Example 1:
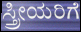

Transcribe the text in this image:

ಸ್ತ್ರೀಯರಿಗೆ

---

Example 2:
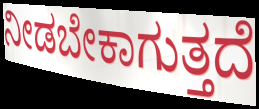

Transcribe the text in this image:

ನೀಡಬೇಕಾಗುತ್ತದೆ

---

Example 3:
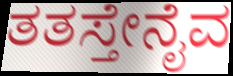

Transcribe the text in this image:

ತತಸ್ತೇನೈವ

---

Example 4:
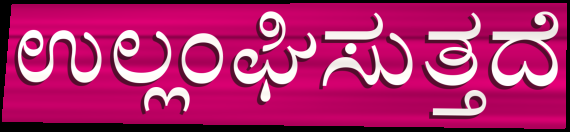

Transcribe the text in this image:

ಉಲ್ಲಂಘಿಸುತ್ತದೆ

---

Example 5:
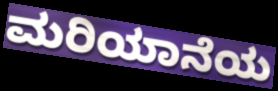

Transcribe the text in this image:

ಮರಿಯಾನೆಯ